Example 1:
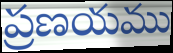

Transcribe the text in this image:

ప్రణయము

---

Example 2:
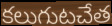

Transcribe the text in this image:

కలుగుటచేత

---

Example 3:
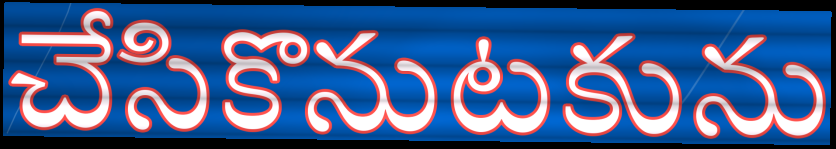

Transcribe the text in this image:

చేసికొనుటకును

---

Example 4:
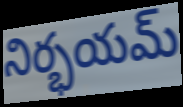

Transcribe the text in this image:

నిర్భయమ్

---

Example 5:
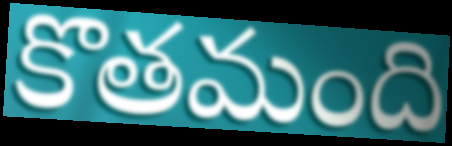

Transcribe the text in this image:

కొతమంది